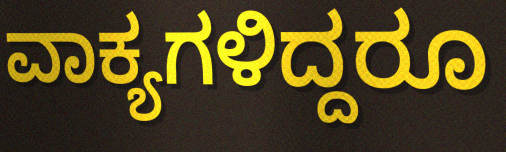
ವಾಕ್ಯಗಳಿದ್ದರೂ